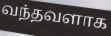
வந்தவளாக